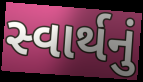
સ્વાર્થનું